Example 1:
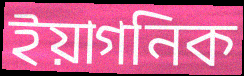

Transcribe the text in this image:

ইয়াগনিক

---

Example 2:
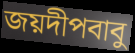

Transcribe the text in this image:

জয়দীপবাবু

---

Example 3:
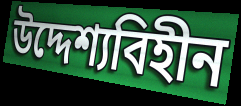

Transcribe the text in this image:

উদ্দেশ্যবিহীন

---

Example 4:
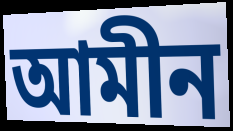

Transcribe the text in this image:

আমীন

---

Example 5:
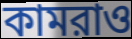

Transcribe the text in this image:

কামরাও